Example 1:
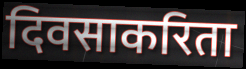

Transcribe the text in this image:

दिवसाकरिता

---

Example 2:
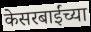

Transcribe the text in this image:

केसरबाईंच्या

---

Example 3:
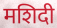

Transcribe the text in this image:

मशिदी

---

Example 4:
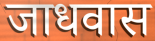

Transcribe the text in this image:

जाधवास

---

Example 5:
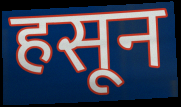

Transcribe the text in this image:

हसून